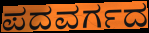
ಪದವರ್ಗದ